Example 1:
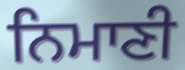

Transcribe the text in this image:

ਨਿਮਾਣੀ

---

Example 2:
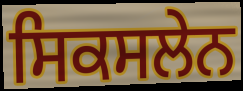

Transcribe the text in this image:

ਸਿਕਸਲੇਨ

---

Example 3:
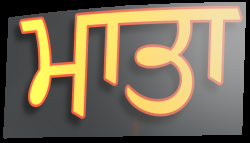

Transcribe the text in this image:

ਮਾਤਾ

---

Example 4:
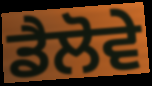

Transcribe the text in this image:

ਡੈਲੋਵੇ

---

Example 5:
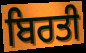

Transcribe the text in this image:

ਬਿਰਤੀ